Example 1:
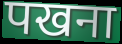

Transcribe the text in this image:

पखना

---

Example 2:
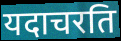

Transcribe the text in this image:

यदाचरति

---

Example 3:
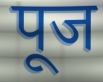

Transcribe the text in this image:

पूज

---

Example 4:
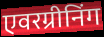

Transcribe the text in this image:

एवरग्रीनिंग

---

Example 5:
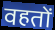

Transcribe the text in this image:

वहतों